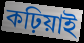
কঢ়িয়াই